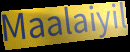
Maalaiyil